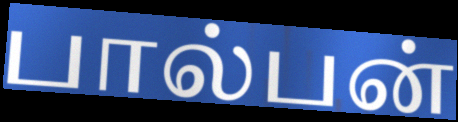
பால்பன்